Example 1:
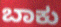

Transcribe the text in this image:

ಬಾಕು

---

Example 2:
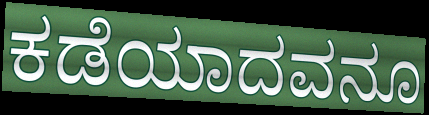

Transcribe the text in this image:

ಕಡೆಯಾದವನೂ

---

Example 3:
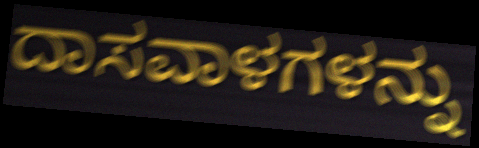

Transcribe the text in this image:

ದಾಸವಾಳಗಳನ್ನು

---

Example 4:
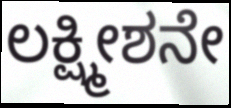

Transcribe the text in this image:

ಲಕ್ಷ್ಮೀಶನೇ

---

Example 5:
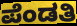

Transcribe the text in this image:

ಪೆಂಡತಿ